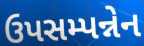
ઉપસમ્પન્નેન